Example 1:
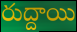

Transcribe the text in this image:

రుద్దాయి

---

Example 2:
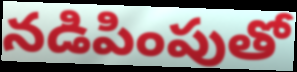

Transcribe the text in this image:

నడిపింపుతో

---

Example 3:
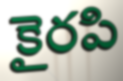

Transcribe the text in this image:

కైరపి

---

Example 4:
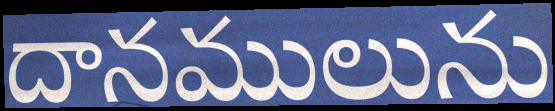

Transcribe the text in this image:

దానములును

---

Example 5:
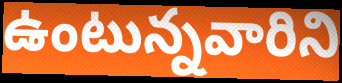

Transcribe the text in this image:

ఉంటున్నవారిని